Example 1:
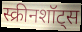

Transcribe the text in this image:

स्क्रीनशॉट्स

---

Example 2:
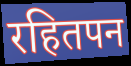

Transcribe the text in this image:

रहितपन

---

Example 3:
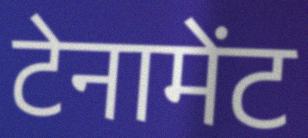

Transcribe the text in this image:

टेनामेंट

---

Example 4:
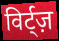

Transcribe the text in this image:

विर्ट्ज़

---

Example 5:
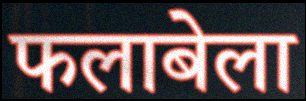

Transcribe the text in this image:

फलाबेला